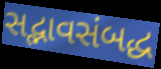
સદ્ભાવસંબદ્ધ